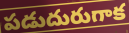
పడుదురుగాక